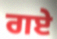
ਗਏ